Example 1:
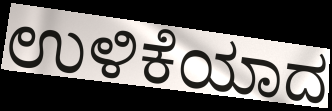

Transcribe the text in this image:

ಉಳಿಕೆಯಾದ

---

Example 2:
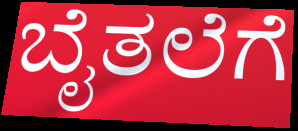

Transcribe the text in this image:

ಬೈತಲೆಗೆ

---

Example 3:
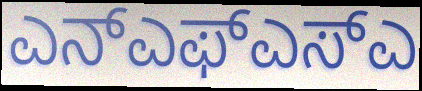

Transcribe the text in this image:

ಎನ್ಎಫ್ಎಸ್ಎ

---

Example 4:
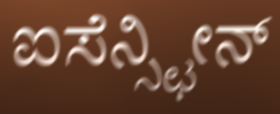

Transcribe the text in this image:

ಐಸೆನ್ಸ್ಟೀನ್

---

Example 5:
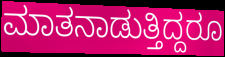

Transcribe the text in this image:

ಮಾತನಾಡುತ್ತಿದ್ದರೂ